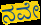
ನವೇ